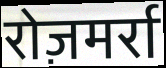
रोज़मर्रा